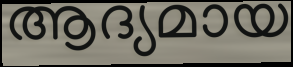
ആദ്യമായ